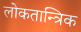
लोकतान्त्रिक